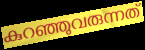
കുറഞ്ഞുവരുന്നത്